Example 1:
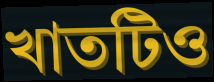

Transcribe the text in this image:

খাতটিও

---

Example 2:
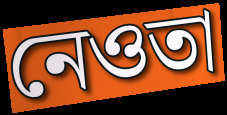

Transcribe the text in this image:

নেওতা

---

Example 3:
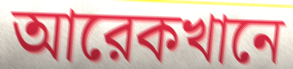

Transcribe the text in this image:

আরেকখানে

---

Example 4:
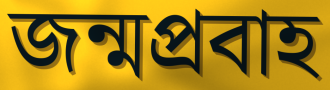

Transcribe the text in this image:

জন্মপ্রবাহ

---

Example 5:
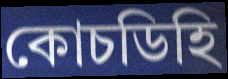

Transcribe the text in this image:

কোচডিহি